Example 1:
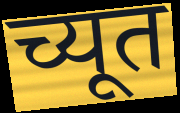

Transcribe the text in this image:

च्यूत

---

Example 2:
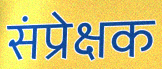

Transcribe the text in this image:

संप्रेक्षक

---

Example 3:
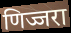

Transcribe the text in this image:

णिज्जरा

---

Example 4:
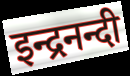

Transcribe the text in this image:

इन्द्रनन्दी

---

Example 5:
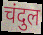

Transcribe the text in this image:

चंदुल